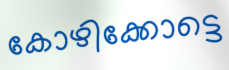
കോഴിക്കോട്ടെ